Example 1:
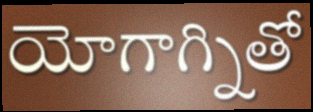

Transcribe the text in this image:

యోగాగ్నితో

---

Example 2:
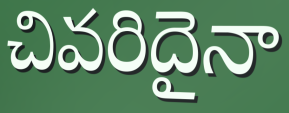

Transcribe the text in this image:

చివరిదైనా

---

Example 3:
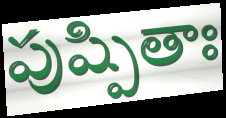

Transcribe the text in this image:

పుష్పితాః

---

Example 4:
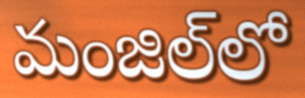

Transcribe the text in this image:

మంజిల్‌లో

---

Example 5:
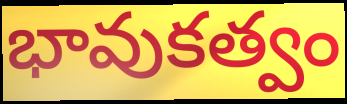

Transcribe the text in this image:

భావుకత్వం